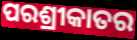
ପରଶ୍ରୀକାତର